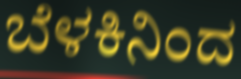
ಬೆಳಕಿನಿಂದ